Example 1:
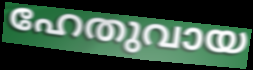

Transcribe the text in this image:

ഹേതുവായ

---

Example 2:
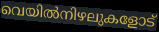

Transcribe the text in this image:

വെയിൽനിഴലുകളോട്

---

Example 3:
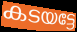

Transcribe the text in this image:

കടയട്ടേ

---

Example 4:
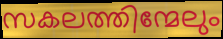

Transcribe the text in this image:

സകലത്തിന്മേലും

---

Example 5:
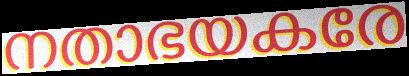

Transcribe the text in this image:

നതാഭയകരേ